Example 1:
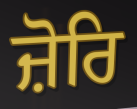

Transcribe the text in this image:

ਜ਼ੋਰਿ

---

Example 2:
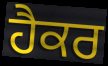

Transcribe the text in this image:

ਹੈਕਰ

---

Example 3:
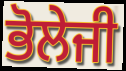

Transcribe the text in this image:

ਭੋਲੇਜੀ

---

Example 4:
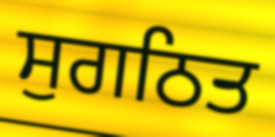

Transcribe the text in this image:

ਸੁਗਠਿਤ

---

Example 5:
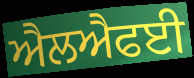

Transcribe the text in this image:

ਐਲਐਫਈ